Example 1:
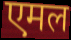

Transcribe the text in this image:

एमल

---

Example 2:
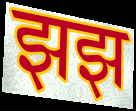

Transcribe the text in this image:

झझ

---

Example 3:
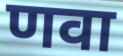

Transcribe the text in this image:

णवा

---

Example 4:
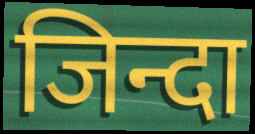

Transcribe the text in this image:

जिन्‍दा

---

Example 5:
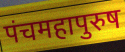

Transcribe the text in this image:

पंचमहापुरुष